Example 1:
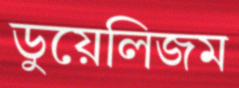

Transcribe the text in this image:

ডুয়েলিজম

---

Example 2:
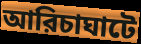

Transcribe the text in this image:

আরিচাঘাটে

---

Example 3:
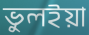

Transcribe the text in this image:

ভুলইয়া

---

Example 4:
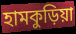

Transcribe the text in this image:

হামকুড়িয়া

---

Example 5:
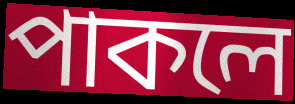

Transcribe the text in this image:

পাকলে